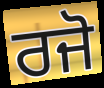
ਰਜੋ